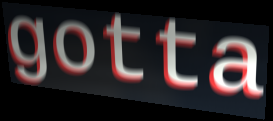
gotta